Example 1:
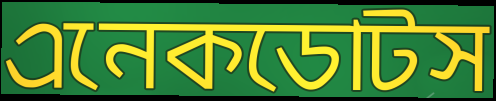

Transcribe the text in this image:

এনেকডোটস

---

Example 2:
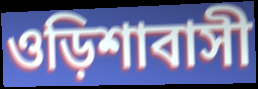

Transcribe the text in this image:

ওড়িশাবাসী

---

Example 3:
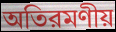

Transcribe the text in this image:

অতিরমণীয়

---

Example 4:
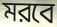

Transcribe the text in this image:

মরবে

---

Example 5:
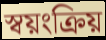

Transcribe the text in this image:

স্বয়ংক্রিয়